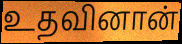
உதவினான்